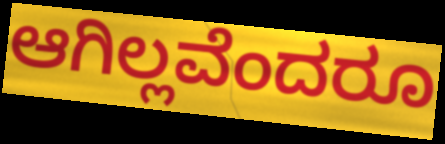
ಆಗಿಲ್ಲವೆಂದರೂ